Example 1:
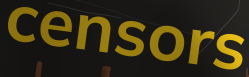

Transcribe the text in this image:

censors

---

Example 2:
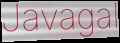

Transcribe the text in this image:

Javagal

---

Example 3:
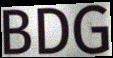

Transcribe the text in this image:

BDG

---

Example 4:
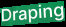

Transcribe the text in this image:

Draping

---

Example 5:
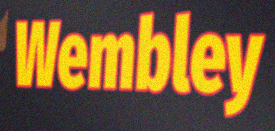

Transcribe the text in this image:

Wembley